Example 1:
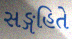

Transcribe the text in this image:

સઙ્ગહિતે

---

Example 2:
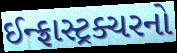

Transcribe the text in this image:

ઈન્ફ્રાસ્ટ્રક્ચરનો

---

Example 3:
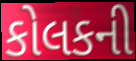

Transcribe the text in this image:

કોલકની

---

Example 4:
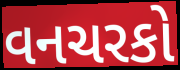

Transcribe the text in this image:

વનચરકો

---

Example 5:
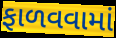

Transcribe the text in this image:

ફાળવવામાં